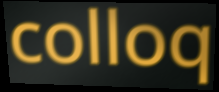
colloq